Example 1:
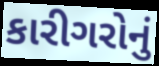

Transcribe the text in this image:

કારીગરોનું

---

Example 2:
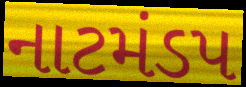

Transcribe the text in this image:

નાટમંડપ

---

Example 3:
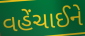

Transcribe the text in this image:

વહેંચાઈને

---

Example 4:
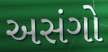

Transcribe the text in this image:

અસંગો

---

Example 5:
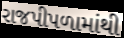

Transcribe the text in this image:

રાજપીપળામાંથી